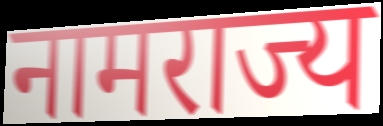
नामराज्य